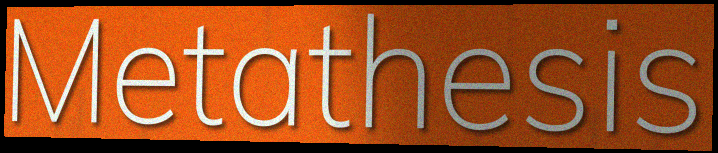
Metathesis